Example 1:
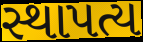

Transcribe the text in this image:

સ્થાપત્ય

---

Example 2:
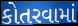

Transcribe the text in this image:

કોતરવામાં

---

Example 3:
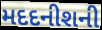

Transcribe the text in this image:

મદદનીશની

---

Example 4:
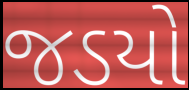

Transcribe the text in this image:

જડયો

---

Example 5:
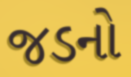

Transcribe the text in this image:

જડનો